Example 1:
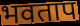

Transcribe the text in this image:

भवताप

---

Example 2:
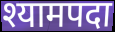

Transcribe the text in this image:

श्यामपदा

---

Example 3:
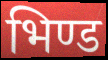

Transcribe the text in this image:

भिण्ड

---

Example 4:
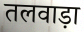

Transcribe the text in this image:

तलवाड़ा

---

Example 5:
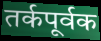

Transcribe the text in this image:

तर्कपूर्वक